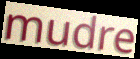
mudre